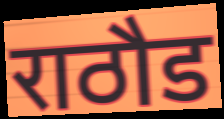
राठौड